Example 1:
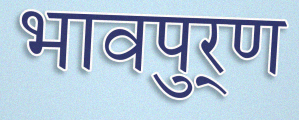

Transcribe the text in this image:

भावपुर्ण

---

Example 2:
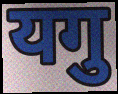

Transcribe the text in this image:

यगु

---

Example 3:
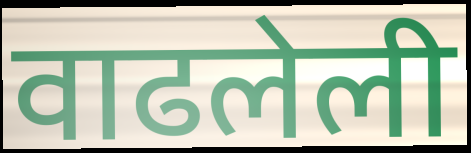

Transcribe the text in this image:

वाढलेली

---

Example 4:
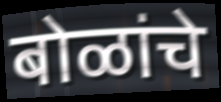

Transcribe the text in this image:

बोळांचे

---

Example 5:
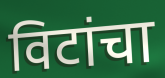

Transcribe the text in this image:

विटांचा